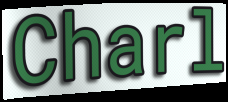
Charl